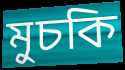
মুচকি